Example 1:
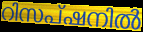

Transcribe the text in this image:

റിസപ്ഷനിൽ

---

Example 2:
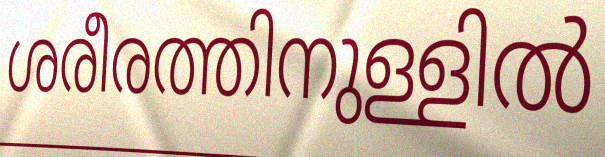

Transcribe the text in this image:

ശരീരത്തിനുള്ളിൽ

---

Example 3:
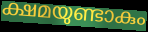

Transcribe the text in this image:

ക്ഷമയുണ്ടാകും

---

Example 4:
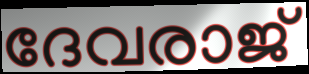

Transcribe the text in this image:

ദേവരാജ്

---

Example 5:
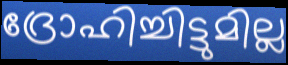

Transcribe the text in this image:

ദ്രോഹിച്ചിട്ടുമില്ല